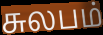
சுலபம்